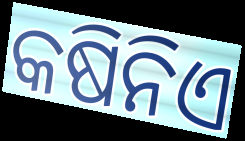
କଷିନିଏ